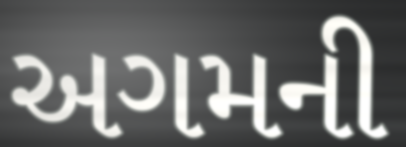
અગમની